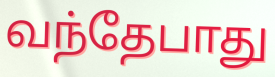
வந்தேபாது